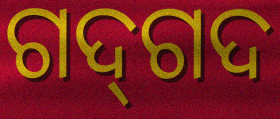
ଗଦ୍‌ଗଦ